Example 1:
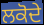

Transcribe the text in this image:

ਲਕੋਦੇ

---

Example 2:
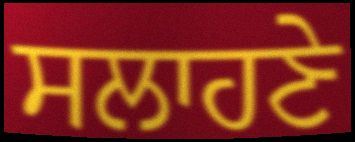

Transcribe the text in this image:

ਸਲਾਹਣੇ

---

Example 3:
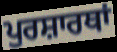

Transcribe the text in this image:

ਪੁਰਸ਼ਾਰਥਾਂ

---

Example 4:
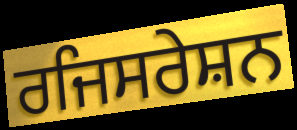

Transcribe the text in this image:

ਰਜਿਸਰੇਸ਼ਨ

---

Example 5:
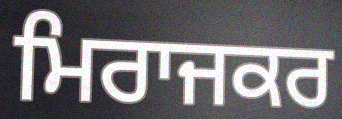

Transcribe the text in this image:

ਮਿਰਾਜਕਰ